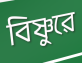
বিষ্ণুৱে